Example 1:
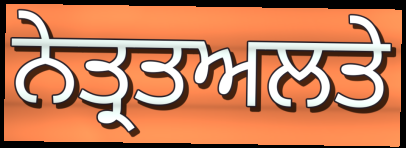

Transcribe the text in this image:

ਨੇਤ੍ਰਤਅਲਤੇ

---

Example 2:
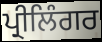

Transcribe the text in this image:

ਪ੍ਰੀਲਿੰਗਰ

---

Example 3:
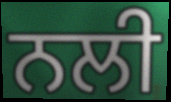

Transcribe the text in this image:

ਨਲੀ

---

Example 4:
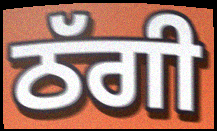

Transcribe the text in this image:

ਠੱਗੀ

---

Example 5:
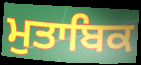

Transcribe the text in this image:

ਮੁਤਾਬਿਕ